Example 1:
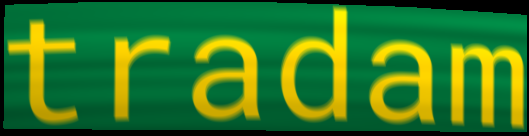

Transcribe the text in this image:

tradam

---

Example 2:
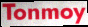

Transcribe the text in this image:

Tonmoy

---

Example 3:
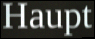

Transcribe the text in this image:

Haupt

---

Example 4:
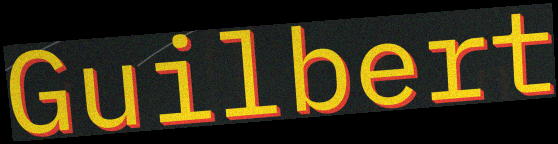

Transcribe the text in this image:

Guilbert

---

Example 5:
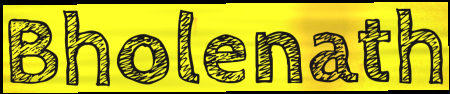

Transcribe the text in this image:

Bholenath